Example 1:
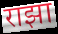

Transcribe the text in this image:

राझा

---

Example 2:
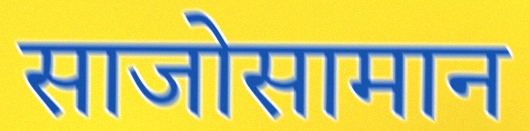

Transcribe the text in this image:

साजोसामान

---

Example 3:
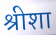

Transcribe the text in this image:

श्रीशा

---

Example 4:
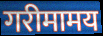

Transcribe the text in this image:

गरीमामय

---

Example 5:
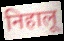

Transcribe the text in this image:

निहालू